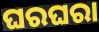
ଘରଘରା